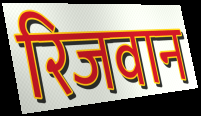
रिजवान